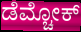
ಡೆಮ್ಚೋಕ್